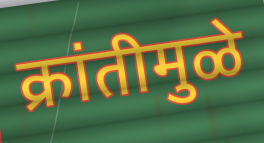
क्रांतीमुळे